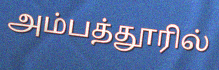
அம்பத்தூரில்